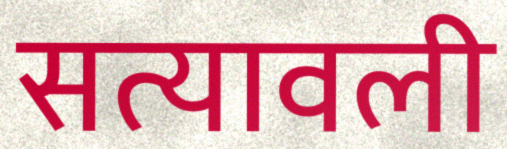
सत्यावली